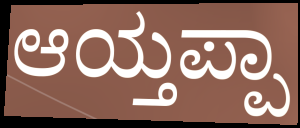
ಆಯ್ತಪ್ಪಾ